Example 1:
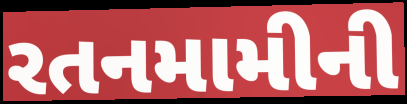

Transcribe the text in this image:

રતનમામીની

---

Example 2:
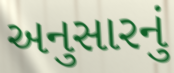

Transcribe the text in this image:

અનુસારનું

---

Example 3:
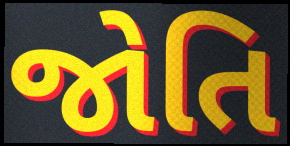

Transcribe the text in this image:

જોતિ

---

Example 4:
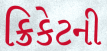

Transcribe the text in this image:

ક્રિકેટની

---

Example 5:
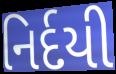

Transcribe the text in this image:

નિર્દયી